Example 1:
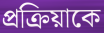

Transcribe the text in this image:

প্রক্রিয়াকে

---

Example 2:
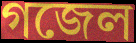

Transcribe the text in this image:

গজেল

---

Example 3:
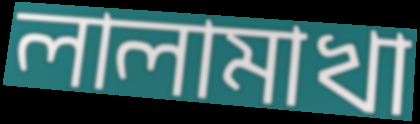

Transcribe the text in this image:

লালামাখা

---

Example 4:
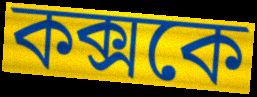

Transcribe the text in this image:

কক্সকে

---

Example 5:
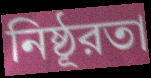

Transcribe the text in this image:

নিষ্ঠূরতা